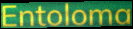
Entoloma